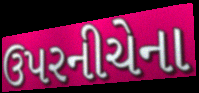
ઉપરનીચેના